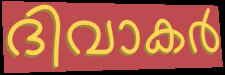
ദിവാകർ